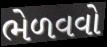
ભેળવવો